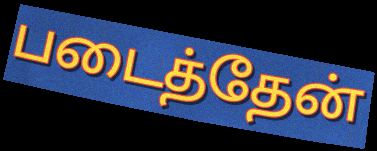
படைத்தேன்